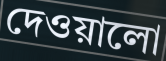
দেওয়ালো